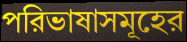
পরিভাষাসমূহের